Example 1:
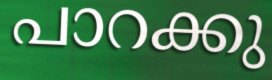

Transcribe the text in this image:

പാറക്കു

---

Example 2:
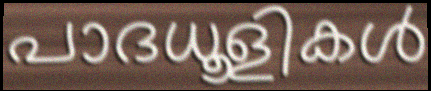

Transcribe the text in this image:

പാദധൂളികൾ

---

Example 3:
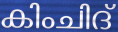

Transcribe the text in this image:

കിംചിദ്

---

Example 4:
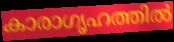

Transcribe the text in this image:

കാരാഗൃഹത്തിൽ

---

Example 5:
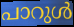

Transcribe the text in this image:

പാറുൾ